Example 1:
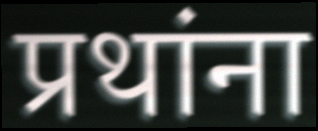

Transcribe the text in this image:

प्रथांना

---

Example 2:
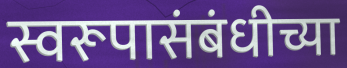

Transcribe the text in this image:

स्वरूपासंबंधीच्या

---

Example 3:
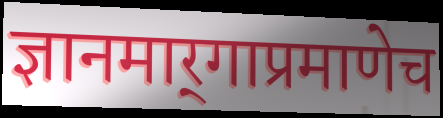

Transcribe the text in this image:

ज्ञानमार्गाप्रमाणेच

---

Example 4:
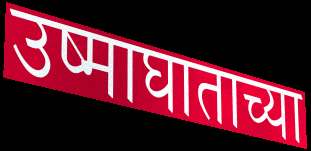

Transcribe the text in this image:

उष्माघाताच्या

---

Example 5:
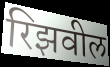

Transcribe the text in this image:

रिझवील